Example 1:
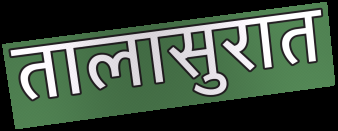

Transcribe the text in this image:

तालासुरात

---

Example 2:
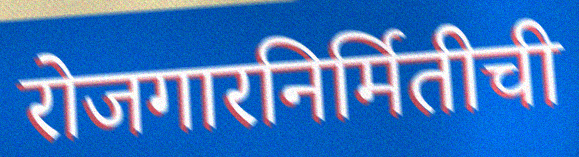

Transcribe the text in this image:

रोजगारनिर्मितीची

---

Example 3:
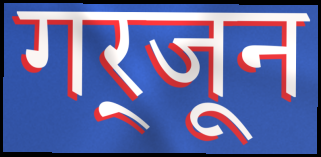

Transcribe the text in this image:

गर्जून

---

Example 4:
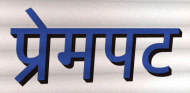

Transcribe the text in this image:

प्रेमपट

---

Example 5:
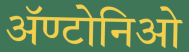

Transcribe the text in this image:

ॲण्टोनिओ